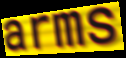
arms